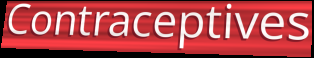
Contraceptives